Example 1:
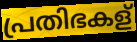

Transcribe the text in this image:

പ്രതിഭകള്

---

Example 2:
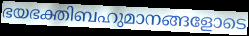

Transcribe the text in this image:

ഭയഭക്തിബഹുമാനങ്ങളോടെ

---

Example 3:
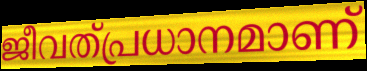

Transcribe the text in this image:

ജീവത്പ്രധാനമാണ്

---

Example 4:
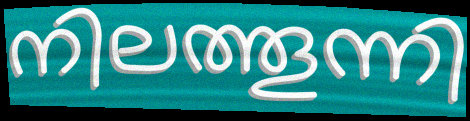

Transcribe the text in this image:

നിലത്തൂന്നി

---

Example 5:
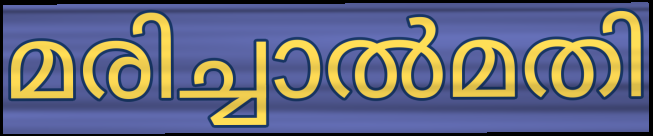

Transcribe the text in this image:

മരിച്ചാൽമതി